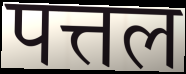
पत्तल